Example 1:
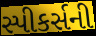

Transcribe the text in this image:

સ્પીકર્સની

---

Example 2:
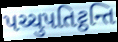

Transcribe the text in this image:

પચ્ચુપતિટ્ઠન્તિ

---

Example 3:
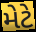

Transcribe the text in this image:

મેટે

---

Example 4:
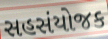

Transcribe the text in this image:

સહસંયોજક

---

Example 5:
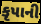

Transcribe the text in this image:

કૃપાની